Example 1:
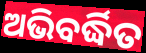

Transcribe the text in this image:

ଅଭିବର୍ଦ୍ଧିତ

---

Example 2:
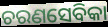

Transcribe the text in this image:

ଚରଣସେବିକା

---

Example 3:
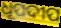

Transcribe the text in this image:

ଧୂପଦୀପ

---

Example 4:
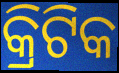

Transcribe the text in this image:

କ୍ରିଟିକ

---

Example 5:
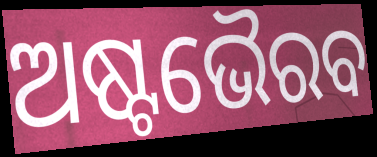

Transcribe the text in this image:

ଅଷ୍ଟଭୈରବ